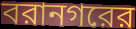
বরানগরের